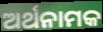
ଅର୍ଥନାମକ